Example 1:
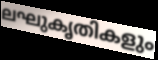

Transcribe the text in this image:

ലഘുകൃതികളും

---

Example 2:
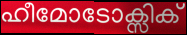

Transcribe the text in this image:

ഹീമോടോക്സിക്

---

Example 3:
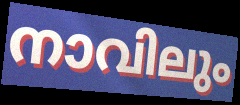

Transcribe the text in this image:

നാവിലും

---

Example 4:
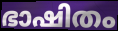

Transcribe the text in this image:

ഭാഷിതം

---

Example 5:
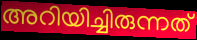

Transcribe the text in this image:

അറിയിച്ചിരുന്നത്